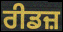
ਰੀਡਜ਼